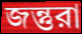
জন্তুরা